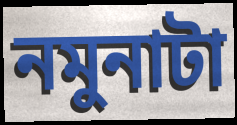
নমুনাটা